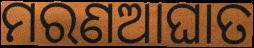
ମରଣଆଘାତ